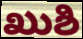
ಖುಶಿ